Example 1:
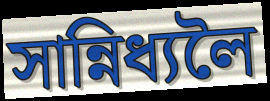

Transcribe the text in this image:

সান্নিধ্যলৈ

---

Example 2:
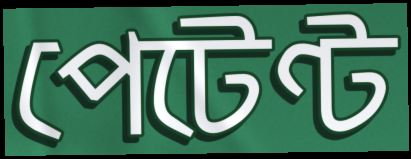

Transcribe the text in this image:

পেটেণ্ট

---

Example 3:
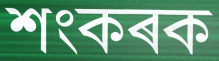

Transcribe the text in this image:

শংকৰক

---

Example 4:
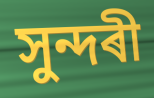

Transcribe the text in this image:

সুন্দৰী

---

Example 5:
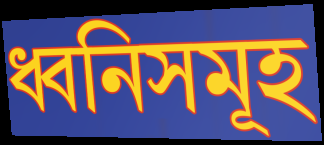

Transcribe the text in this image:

ধ্বনিসমূহ